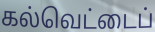
கல்வெட்டைப்